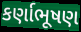
કર્ણાભૂષણ